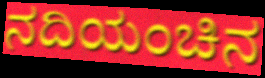
ನದಿಯಂಚಿನ